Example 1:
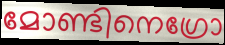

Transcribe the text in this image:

മോണ്ടിനെഗ്രോ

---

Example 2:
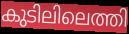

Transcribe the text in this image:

കുടിലിലെത്തി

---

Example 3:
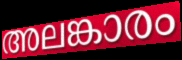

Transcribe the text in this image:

അലങ്കാരം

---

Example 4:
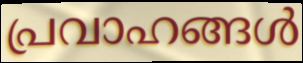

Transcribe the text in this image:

പ്രവാഹങ്ങൾ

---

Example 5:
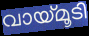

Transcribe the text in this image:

വായ്മൂടി